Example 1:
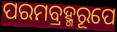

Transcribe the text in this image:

ପରମବ୍ରହ୍ମରୂପେ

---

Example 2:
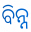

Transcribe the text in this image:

ବିନ୍ନ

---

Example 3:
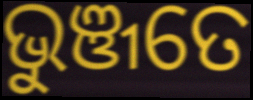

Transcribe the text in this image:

ଭୁଞ୍ଜତେ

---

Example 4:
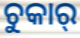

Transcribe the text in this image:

ଚୁକାର୍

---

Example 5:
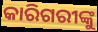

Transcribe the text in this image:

କାରିଗରୀଙ୍କୁ